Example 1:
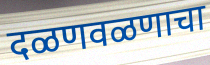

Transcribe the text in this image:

दळणवळणाचा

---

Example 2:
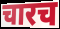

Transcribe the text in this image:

चारच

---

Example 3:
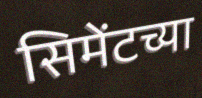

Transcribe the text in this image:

सिमेंटच्या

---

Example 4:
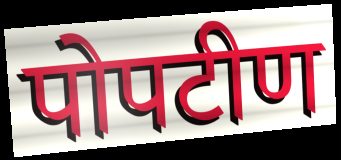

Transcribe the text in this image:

पोपटीण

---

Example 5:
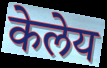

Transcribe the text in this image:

केलेय